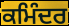
ਕਮਿੰਦਰ